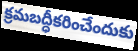
క్రమబద్ధీకరించేందుకు